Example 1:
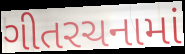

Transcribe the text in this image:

ગીતરચનામાં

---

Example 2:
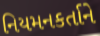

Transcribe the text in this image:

નિયમનકર્તાને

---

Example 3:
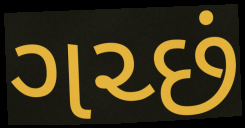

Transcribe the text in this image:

ગચ્છં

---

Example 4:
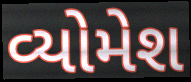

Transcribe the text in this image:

વ્યોમેશ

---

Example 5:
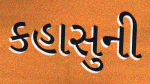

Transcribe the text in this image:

કહાસુની